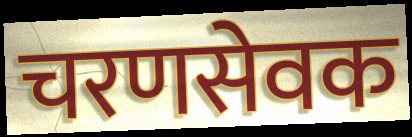
चरणसेवक